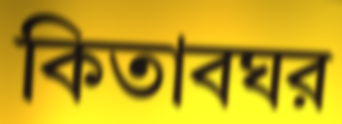
কিতাবঘর